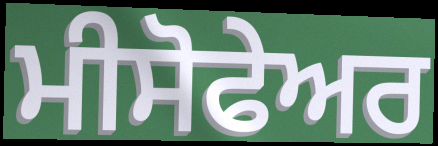
ਮੀਸੋਫੇਅਰ